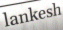
lankesh